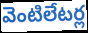
వెంటిలేటర్ల